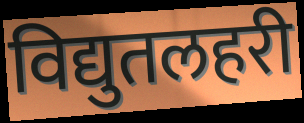
विद्युतलहरी